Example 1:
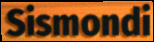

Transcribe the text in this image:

Sismondi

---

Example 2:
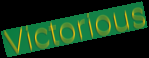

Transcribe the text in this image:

Victorious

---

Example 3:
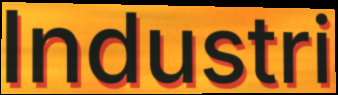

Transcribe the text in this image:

Industri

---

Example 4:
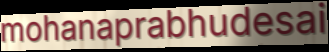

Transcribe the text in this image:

mohanaprabhudesai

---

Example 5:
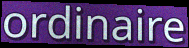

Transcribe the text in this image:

ordinaire